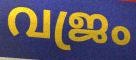
വജ്രം